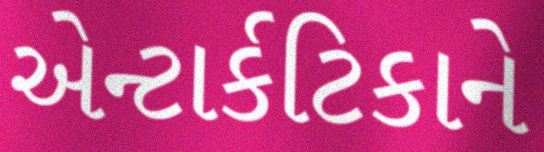
એન્ટાર્કટિકાને